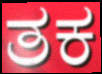
ತಕ